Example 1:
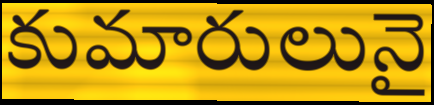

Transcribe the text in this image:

కుమారులునై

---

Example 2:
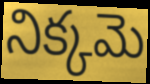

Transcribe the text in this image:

నిక్కమె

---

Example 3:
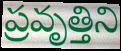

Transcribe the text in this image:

ప్రవృత్తిని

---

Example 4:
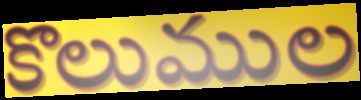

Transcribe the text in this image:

కొలుముల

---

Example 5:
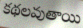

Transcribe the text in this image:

కథలవుతాయి